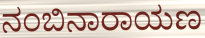
ನಂಬಿನಾರಾಯಣ